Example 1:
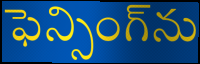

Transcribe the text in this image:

ఫెన్సింగ్‌ను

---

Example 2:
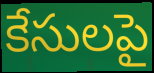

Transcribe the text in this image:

కేసులపై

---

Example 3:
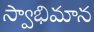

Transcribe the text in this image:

స్వాభిమాన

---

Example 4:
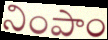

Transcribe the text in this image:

నింపాం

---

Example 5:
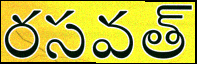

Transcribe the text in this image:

రసవత్